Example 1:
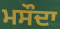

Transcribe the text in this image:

ਮਸੌਦਾ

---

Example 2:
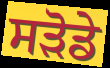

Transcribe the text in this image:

ਸੜੋਡੇ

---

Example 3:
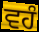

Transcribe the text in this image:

ਵਹੰ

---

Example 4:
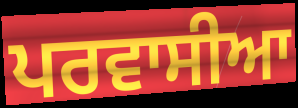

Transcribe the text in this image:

ਪਰਵਾਸੀਆ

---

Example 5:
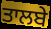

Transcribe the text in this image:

ਤਾਲਬੇ